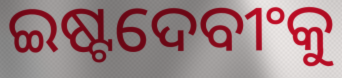
ଇଷ୍ଟଦେବୀଂକୁ